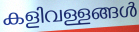
കളിവള്ളങ്ങൾ